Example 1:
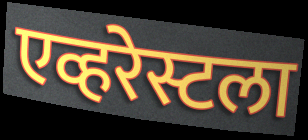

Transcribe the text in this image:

एव्हरेस्टला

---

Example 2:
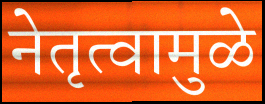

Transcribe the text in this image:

नेतृत्वामुळे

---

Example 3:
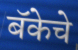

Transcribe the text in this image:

बॅकेचे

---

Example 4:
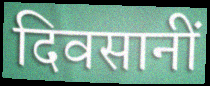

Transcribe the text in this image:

दिवसानीं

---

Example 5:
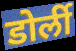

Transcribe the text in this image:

डोर्ली